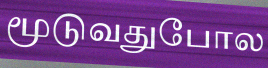
மூடுவதுபோல